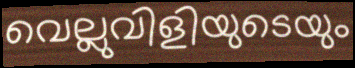
വെല്ലുവിളിയുടെയും